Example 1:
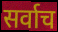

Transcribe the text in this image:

सर्वाच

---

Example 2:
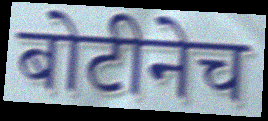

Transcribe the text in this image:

बोटीनेच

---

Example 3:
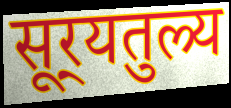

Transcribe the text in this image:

सूर्यतुल्य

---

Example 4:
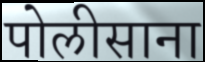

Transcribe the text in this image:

पोलीसाना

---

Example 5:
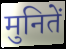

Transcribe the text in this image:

मुनितें